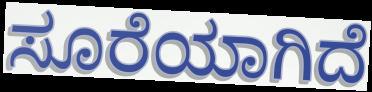
ಸೂರೆಯಾಗಿದೆ